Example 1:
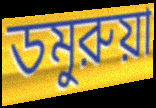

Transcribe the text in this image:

ডমুরুয়া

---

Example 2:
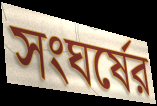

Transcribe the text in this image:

সংঘর্ষের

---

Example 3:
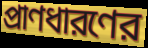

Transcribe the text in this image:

প্রাণধারণের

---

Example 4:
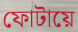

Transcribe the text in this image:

ফোটায়ে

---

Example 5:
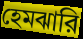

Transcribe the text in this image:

হেমঝারি